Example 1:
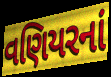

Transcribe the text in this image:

વણિયરનાં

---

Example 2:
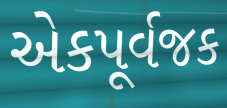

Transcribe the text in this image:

એકપૂર્વજક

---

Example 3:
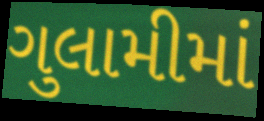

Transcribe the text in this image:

ગુલામીમાં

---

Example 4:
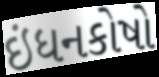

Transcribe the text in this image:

ઇંધનકોષો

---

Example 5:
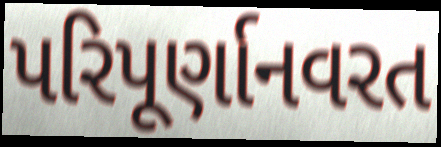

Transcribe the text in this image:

પરિપૂર્ણાનવરત